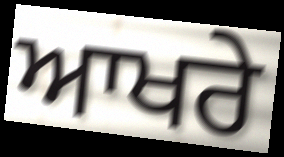
ਆਖਰੇ